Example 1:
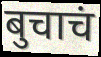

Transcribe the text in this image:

बुचाचं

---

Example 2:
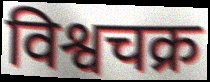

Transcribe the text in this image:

विश्वचक्र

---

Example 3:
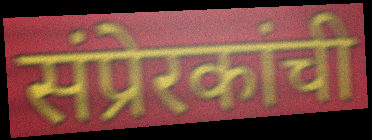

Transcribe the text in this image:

संप्रेरकांची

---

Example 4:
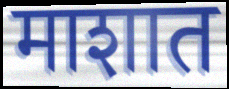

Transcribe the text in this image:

माशात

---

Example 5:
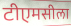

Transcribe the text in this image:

टीएमसीला